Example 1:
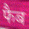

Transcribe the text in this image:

फैब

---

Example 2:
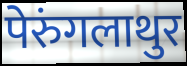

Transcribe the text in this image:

पेरुंगलाथुर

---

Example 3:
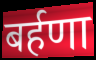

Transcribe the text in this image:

बर्हणा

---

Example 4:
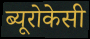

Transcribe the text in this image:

ब्यूरोकेसी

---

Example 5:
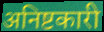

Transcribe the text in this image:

अनिष्टकारी